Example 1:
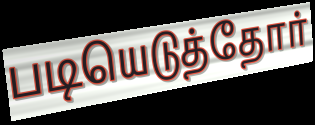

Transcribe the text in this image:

படியெடுத்தோர்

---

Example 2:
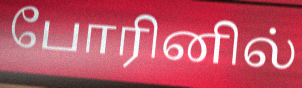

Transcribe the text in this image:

போரினில்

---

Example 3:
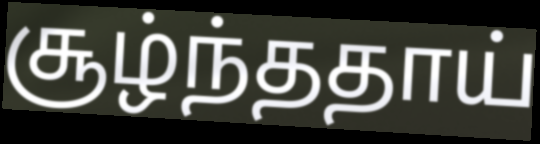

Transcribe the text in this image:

சூழ்ந்ததாய்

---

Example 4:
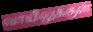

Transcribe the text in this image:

வாயிலுக்குள்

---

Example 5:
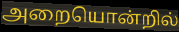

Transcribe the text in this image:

அறையொன்றில்